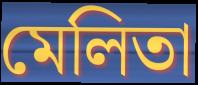
মেলিতা